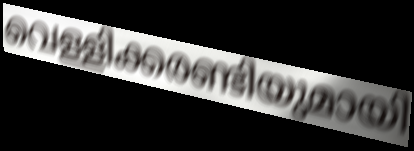
വെള്ളിക്കരണ്ടിയുമായി